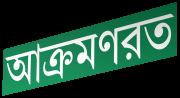
আক্রমণরত